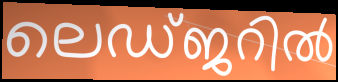
ലെഡ്ജറിൽ